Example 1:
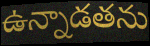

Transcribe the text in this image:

ఉన్నాడతను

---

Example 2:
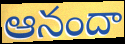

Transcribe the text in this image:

ఆనందా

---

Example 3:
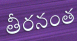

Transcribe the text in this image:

తీరనంత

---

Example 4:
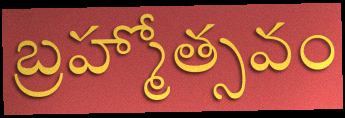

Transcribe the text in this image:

బ్రహ్మోత్సవం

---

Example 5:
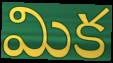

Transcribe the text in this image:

మిక